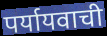
पर्यायवाची